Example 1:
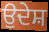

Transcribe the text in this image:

ਉਦੇਸ਼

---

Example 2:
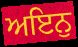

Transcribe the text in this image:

ਅਇਨੁ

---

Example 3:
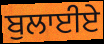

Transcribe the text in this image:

ਬੁਲਾਈਏ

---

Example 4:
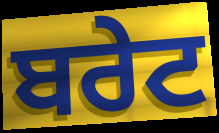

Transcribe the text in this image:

ਬਰੇਟ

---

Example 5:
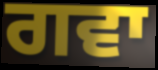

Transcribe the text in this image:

ਗਵਾ